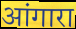
आंगारा